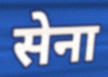
सेना